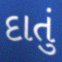
દાતું